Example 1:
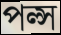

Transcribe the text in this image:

পল্স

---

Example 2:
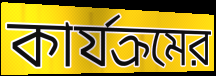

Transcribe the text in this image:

কার্যক্রমের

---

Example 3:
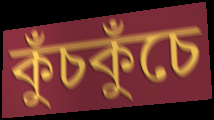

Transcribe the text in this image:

কুঁচকুঁচে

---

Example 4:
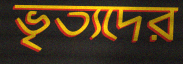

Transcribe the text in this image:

ভৃত্যদের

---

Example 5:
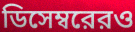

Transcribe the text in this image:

ডিসেম্বরেরও